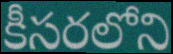
కీసరలోని